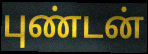
புண்டன்